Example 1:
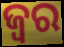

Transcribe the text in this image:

ଜ୍ବର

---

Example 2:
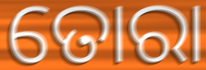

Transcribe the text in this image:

ତୋରା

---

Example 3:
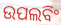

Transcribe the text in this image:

ଉପଲବିଂ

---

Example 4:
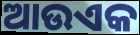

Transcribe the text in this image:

ଆଉଏକ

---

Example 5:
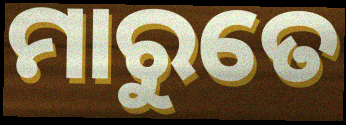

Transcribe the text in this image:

ମାରୁତେ